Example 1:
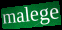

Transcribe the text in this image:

malege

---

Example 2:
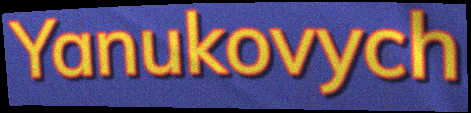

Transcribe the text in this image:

Yanukovych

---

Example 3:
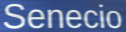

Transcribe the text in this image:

Senecio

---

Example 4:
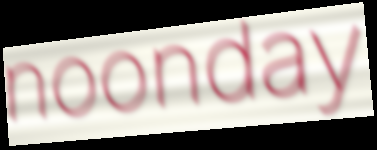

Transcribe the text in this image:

noonday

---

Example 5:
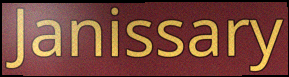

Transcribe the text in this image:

Janissary